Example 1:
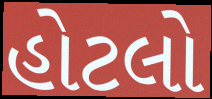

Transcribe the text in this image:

હોટલો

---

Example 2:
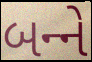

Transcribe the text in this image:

બન્‍ને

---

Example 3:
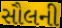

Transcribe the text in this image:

સૌલની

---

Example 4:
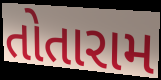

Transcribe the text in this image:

તોતારામ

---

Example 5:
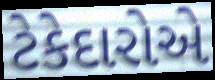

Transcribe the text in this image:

ટેકેદારોએ